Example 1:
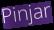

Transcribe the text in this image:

Pinjar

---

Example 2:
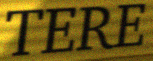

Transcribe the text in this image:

TERE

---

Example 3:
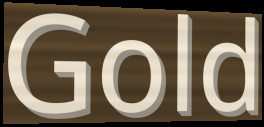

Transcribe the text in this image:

Gold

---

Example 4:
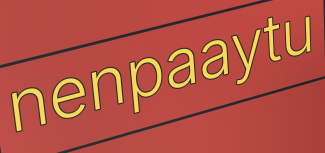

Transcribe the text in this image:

nenpaaytu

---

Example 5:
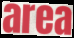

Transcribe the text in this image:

area